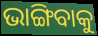
ଭାଙ୍ଗିବାକୁ